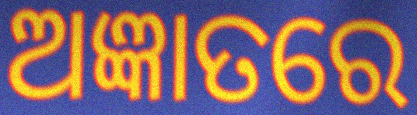
ଅଜ୍ଞାତରେ